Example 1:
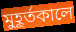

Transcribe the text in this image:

মুহূর্তকালে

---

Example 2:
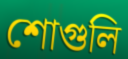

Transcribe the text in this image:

শোগুলি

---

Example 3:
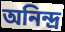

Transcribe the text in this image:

অনিন্দ্র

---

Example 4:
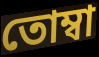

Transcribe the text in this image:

তোম্বা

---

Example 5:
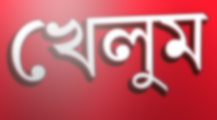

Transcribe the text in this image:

খেলুম